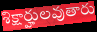
శిక్షార్హులవుతారు